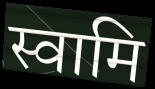
स्वामि